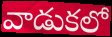
వాడుకలో